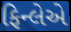
ફિન્લેએ